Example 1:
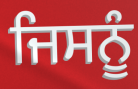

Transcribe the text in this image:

ਜਿਸਨੂੰ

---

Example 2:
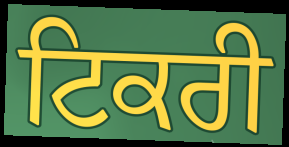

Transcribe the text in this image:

ਟਿਕਰੀ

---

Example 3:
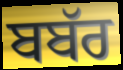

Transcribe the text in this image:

ਬਬੱਰ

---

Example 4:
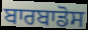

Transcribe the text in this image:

ਬਾਰਬਾਡੋਸ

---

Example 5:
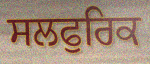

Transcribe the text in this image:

ਸਲਫੁਰਿਕ